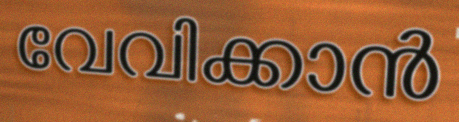
വേവിക്കാൻ